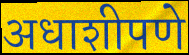
अधाशीपणे